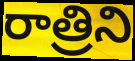
రాత్రిని